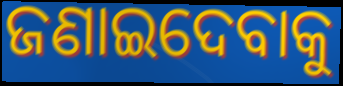
ଜଣାଇଦେବାକୁ